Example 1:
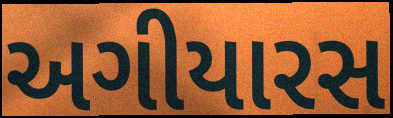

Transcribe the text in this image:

અગીયારસ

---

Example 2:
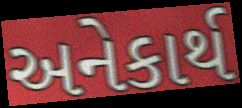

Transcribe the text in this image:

અનેકાર્થ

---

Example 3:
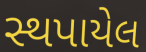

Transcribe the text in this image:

સ્થપાયેલ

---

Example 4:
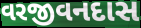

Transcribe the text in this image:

વરજીવનદાસ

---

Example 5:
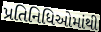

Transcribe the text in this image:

પ્રતિનિધિઓમાંથી